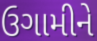
ઉગામીને